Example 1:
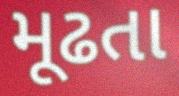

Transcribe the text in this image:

મૂઢતા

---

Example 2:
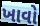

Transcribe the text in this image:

ખાવો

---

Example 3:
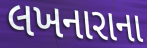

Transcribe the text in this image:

લખનારાના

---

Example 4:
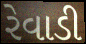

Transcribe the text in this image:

રેવાડી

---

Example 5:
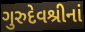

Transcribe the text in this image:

ગુરુદેવશ્રીનાં